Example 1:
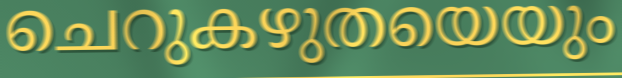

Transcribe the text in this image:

ചെറുകഴുതയെയും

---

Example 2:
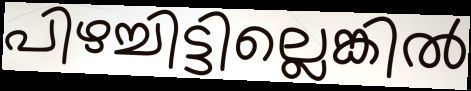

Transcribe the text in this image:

പിഴച്ചിട്ടില്ലെങ്കിൽ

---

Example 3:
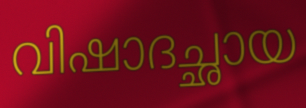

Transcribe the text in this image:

വിഷാദച്ഛായ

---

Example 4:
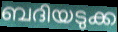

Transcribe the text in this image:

ബദിയടുക്ക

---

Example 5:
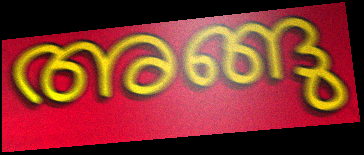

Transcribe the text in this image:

അങ്ങു